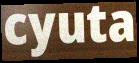
cyuta